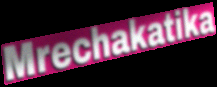
Mrechakatika